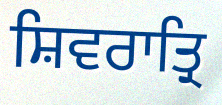
ਸ਼ਿਵਰਾਤ੍ਰਿ